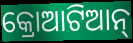
କ୍ରୋଆଟିଆନ୍